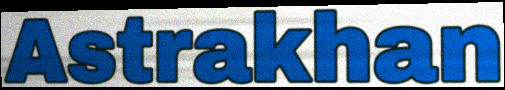
Astrakhan